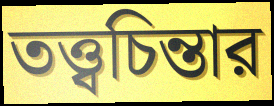
তত্ত্বচিন্তার